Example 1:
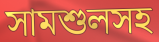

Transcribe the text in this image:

সামশুলসহ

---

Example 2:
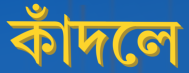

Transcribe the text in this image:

কাঁদলে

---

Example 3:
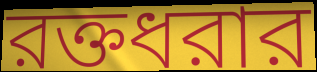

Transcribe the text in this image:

রক্তধরার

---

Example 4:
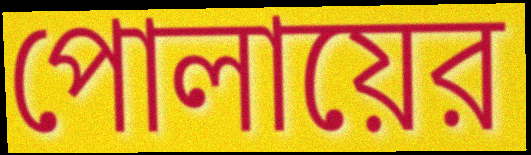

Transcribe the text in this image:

পোলায়ের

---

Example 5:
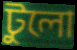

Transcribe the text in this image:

টুলো